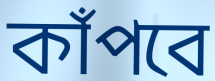
কাঁপবে